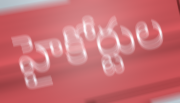
హైకోర్టుల